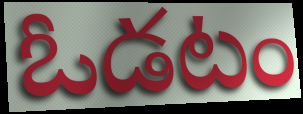
ఓడటం